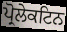
ਪ੍ਰੋਲੇਕਟਿਨ